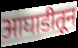
आघाडीतून